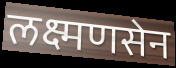
लक्ष्मणसेन